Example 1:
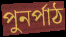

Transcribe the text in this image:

পুনর্পাঠ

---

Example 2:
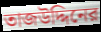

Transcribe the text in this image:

তাজউদ্দিনের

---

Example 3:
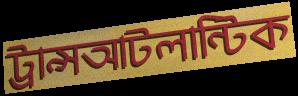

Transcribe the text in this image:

ট্রান্সআটলান্টিক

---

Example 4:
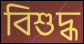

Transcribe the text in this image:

বিশুদ্ধ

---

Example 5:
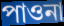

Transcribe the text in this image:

পাওনা